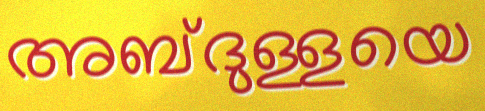
അബ്ദുള്ളയെ